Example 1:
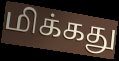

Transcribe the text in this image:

மிக்கது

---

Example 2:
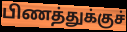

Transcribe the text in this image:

பிணத்துக்குச்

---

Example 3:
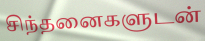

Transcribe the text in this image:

சிந்தனைகளுடன்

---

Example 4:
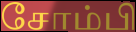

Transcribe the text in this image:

சோம்பி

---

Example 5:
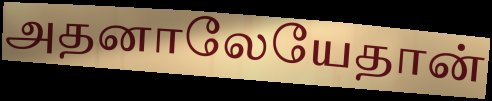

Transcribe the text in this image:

அதனாலேயேதான்